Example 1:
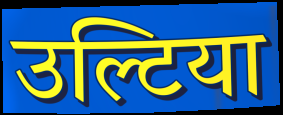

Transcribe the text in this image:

उल्टिया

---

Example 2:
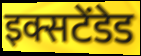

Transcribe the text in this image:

इक्सटेंडेड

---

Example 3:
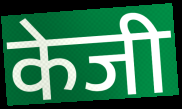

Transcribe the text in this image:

केजी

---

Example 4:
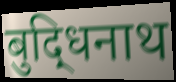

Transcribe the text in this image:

बुद्धिनाथ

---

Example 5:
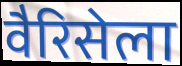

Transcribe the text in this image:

वैरिसेला